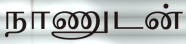
நாணுடன்